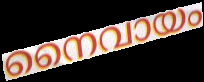
നൈവായം